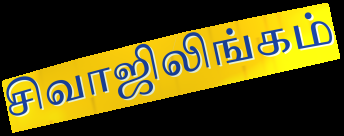
சிவாஜிலிங்கம்